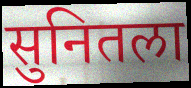
सुनितला